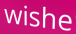
wishe